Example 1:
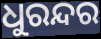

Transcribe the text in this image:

ଧୁରନ୍ଦର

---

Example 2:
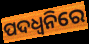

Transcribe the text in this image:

ପଦଧ୍ୱନିରେ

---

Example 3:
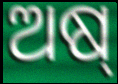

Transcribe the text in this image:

ଅଷ୍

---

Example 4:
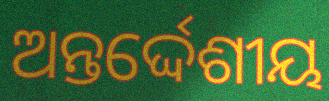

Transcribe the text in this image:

ଅନ୍ତର୍ଦ୍ଦେଶୀୟ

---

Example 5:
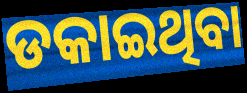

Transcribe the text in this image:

ଡକାଇଥିବା